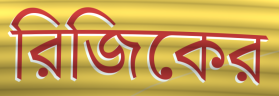
রিজিকের